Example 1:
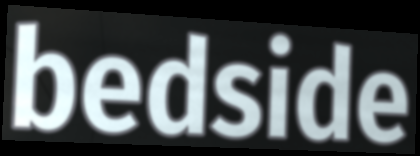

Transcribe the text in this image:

bedside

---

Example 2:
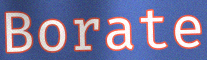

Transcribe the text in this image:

Borate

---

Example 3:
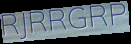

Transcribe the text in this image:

RJRRGRP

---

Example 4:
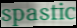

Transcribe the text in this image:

spastic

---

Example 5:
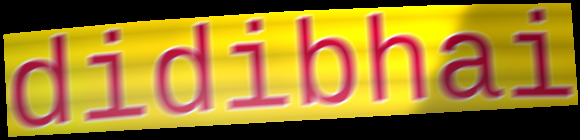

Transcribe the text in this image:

didibhai